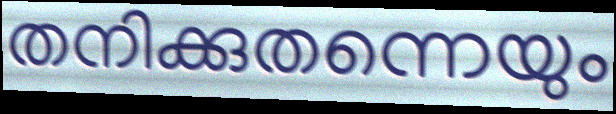
തനിക്കുതന്നെയും